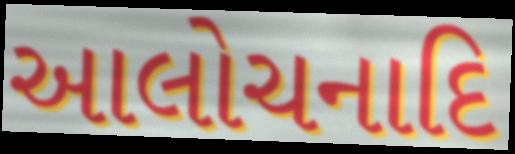
આલોચનાદિ